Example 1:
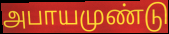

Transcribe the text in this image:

அபாயமுண்டு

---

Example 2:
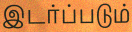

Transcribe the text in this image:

இடர்ப்படும்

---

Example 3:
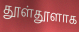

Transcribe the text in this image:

தூள்தூளாக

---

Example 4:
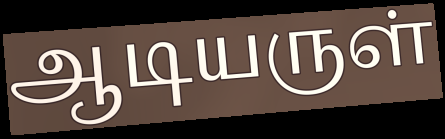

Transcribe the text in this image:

ஆடியருள்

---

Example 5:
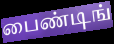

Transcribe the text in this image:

பைண்டிங்